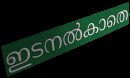
ഇടനൽകാതെ